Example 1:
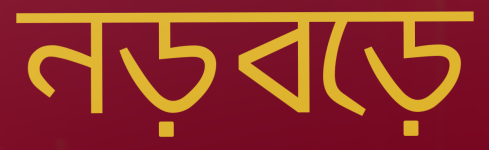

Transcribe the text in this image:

নড়বড়ে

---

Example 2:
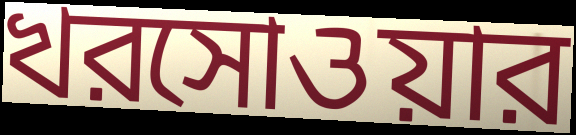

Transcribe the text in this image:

খরসোওয়ার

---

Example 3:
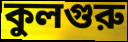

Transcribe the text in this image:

কুলগুরু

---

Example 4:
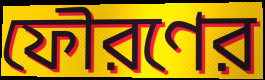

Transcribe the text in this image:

ফৌরণের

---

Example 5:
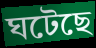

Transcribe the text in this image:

ঘটেছে